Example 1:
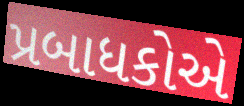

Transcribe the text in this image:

પ્રબાધકોએ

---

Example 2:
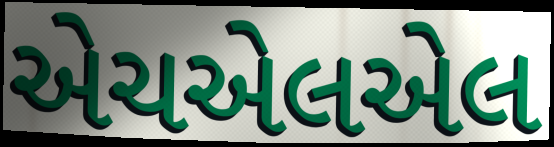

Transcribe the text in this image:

એચએલએલ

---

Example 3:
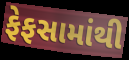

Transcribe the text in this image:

ફેફસામાંથી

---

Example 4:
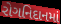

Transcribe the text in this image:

રોગનિદાનમાં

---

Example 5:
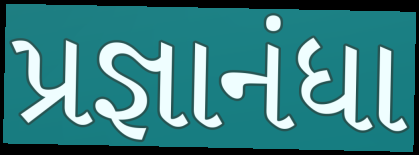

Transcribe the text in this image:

પ્રજ્ઞાનંધા